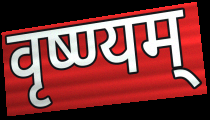
वृष्ण्यम्